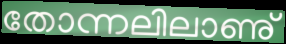
തോന്നലിലാണു്